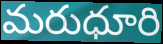
మరుధూరి